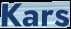
Kars